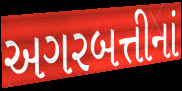
અગરબત્તીનાં